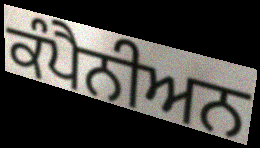
ਕੰਪੈਨੀਅਨ